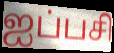
ஐப்பசி